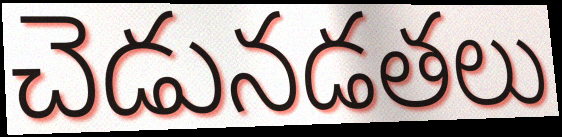
చెడునడతలు